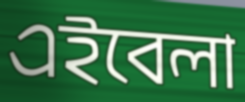
এইবেলা